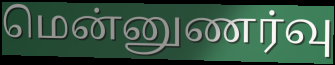
மென்னுணர்வு